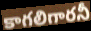
కాగలిగారనీ